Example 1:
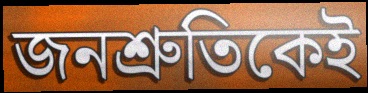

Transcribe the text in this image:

জনশ্রুতিকেই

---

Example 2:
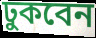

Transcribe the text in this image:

ঢুকবেন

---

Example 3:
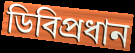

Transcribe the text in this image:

ডিবিপ্রধান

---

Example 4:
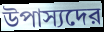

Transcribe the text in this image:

উপাস্যদের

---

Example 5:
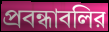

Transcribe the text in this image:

প্রবন্ধাবলির